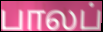
பாலப்